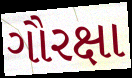
ગૌરક્ષા